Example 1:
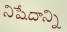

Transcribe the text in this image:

నిషేదాన్ని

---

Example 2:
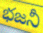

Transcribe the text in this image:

భజనీ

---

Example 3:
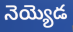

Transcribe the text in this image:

నెయ్యెడ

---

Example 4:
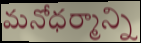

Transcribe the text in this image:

మనోధర్మాన్ని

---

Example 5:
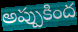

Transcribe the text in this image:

అప్పుకింద